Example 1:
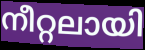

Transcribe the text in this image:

നീറ്റലായി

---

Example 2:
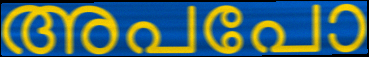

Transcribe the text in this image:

അപപോ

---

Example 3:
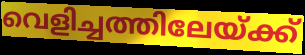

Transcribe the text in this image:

വെളിച്ചത്തിലേയ്ക്ക്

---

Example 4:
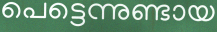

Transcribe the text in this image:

പെട്ടെന്നുണ്ടായ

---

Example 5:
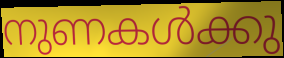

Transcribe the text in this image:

നുണകൾക്കു